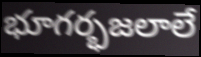
భూగర్భజలాలే